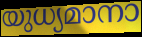
യുധ്യമാനാ